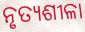
ନୃତ୍ୟଶୀଳା